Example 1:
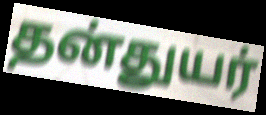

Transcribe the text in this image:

தன்துயர்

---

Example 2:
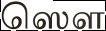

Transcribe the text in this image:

ஸௌ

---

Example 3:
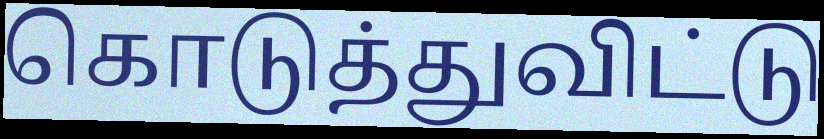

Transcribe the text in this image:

கொடுத்துவிட்டு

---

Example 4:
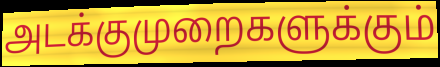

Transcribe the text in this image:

அடக்குமுறைகளுக்கும்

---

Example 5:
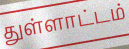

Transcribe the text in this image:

துள்ளாட்டம்